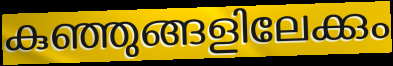
കുഞ്ഞുങ്ങളിലേക്കും